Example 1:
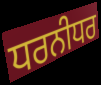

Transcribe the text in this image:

ਧਰਨੀਧਰ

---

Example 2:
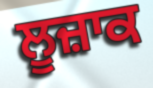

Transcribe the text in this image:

ਲੂਜ਼ਾਕ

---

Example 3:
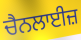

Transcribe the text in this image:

ਚੈਨਲਾਈਜ਼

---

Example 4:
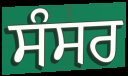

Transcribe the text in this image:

ਸੰਸਰ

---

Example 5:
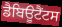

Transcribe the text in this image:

ਡੈਬਿਊਟੈਂਟਸ